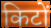
किटों